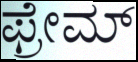
ಫ್ರೇಮ್